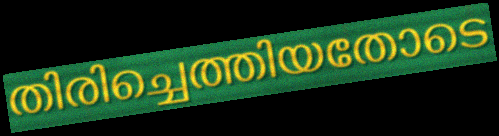
തിരിച്ചെത്തിയതോടെ